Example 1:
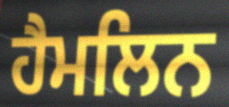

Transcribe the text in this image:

ਹੈਮਲਿਨ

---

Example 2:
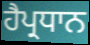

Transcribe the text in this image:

ਹੈਪ੍ਰਧਾਨ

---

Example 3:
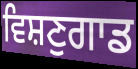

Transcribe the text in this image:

ਵਿਸ਼ਣੁਗਾਡ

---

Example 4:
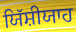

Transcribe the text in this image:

ਯਿੱਸ਼ੀਯਾਹ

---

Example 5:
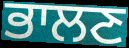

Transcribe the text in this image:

ਭਾਲਣ